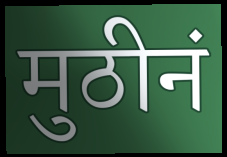
मुठीनं